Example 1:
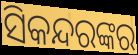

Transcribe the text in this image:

ସିକନ୍ଦରଙ୍କର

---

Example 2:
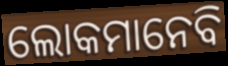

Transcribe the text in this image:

ଲୋକମାନେବି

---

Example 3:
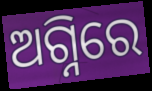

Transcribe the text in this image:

ଅଗ୍ନିରେ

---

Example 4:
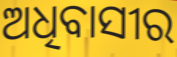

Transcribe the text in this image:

ଅଧିବାସୀର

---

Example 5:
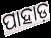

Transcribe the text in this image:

ପାହାଡ଼